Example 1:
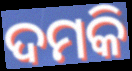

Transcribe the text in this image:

ଦମକି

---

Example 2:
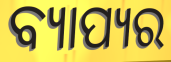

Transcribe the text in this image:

ବ୍ୟାପ୍ୟର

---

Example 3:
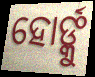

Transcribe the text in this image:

ହୋର୍ଙ୍କୁ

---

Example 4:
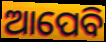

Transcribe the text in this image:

ଆପେବି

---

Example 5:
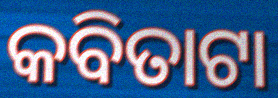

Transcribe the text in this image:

କବିତାଟା